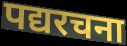
पद्यरचना